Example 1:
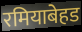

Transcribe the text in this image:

रमियाबेहड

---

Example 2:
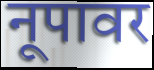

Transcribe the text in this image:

नूपावर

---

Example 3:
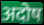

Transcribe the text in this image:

अदोष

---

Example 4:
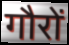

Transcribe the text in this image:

गौरों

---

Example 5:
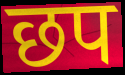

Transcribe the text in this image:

छप